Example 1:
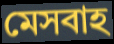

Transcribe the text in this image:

মেসবাহ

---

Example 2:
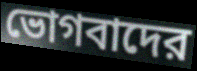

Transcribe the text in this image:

ভোগবাদের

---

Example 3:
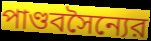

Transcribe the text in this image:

পাণ্ডবসৈন্যের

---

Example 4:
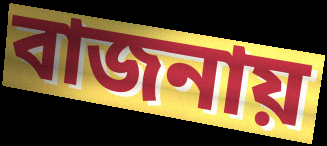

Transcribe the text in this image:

বাজনায়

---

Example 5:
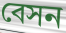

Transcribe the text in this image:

বেসন